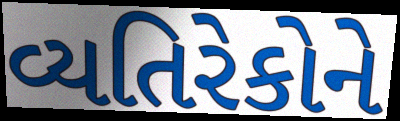
વ્યતિરેકોને